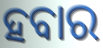
ହବାର